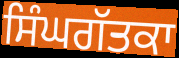
ਸਿੰਘਗੱਤਕਾ